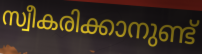
സ്വീകരിക്കാനുണ്ട്